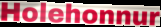
Holehonnur